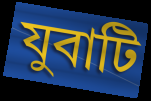
যুবাটি